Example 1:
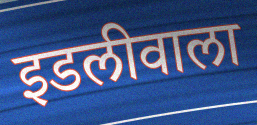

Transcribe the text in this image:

इडलीवाला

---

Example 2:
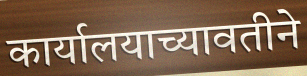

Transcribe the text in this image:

कार्यालयाच्यावतीने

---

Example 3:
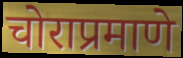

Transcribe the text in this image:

चोराप्रमाणे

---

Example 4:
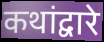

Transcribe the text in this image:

कथांद्वारे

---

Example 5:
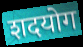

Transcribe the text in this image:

शदयोग